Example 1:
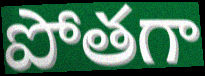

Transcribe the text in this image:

పోతగా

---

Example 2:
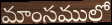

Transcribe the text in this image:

మాంసములో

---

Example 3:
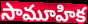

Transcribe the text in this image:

సామూహిక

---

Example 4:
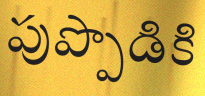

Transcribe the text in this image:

పుప్పొడికి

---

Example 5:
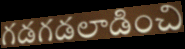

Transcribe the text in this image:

గడగడలాడించి